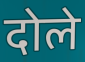
दोले